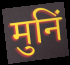
मुनिं